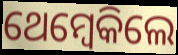
ଥେମ୍ବେକିଲେ